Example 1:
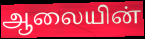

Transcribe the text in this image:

ஆலையின்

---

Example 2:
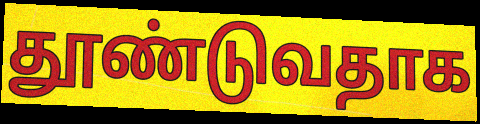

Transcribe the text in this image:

தூண்டுவதாக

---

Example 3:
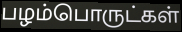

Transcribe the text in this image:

பழம்பொருட்கள்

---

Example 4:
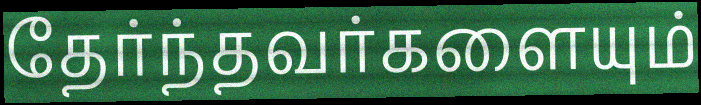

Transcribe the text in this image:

தேர்ந்தவர்களையும்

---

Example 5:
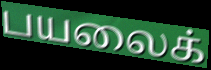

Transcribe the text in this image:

பயலைக்